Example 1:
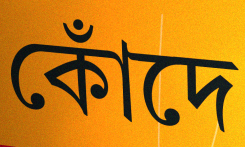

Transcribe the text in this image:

কোঁদে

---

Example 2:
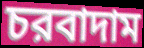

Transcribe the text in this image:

চরবাদাম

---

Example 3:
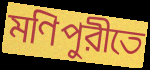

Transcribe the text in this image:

মণিপুরীতে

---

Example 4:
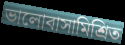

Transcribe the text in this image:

ভালোবাসামিশ্রিত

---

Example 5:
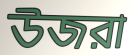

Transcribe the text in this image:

উজরা